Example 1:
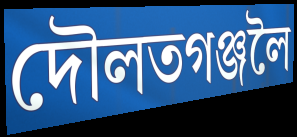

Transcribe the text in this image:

দৌলতগঞ্জলৈ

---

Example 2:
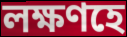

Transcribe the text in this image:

লক্ষণহে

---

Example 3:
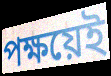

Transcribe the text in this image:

পক্ষয়েই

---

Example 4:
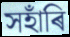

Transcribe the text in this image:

সহাঁৰি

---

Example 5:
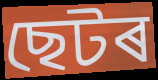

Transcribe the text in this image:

ছেটৰ